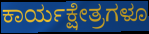
ಕಾರ್ಯಕ್ಷೇತ್ರಗಳೂ